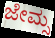
ಜೇಮ್ಸ